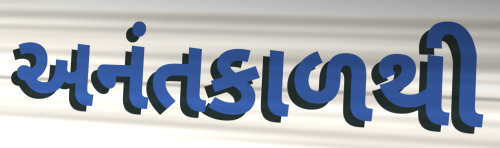
અનંતકાળથી